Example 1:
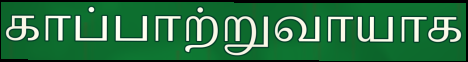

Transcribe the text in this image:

காப்பாற்றுவாயாக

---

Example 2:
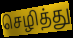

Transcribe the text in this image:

செழித்து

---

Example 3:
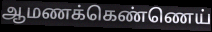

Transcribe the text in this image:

ஆமணக்கெண்ணெய்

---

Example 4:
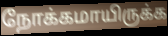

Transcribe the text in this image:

நோக்கமாயிருக்க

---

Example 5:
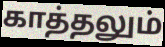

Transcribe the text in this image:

காத்தலும்